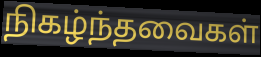
நிகழ்ந்தவைகள்